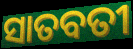
ସାତବତୀ